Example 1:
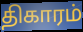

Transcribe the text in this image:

திகாரம்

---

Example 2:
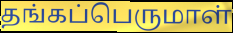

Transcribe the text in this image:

தங்கப்பெருமாள்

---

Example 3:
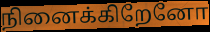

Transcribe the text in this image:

நினைக்கிறேனோ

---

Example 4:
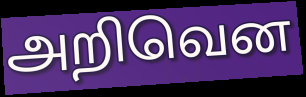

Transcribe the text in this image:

அறிவென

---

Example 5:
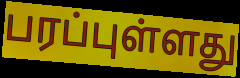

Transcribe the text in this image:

பரப்புள்ளது